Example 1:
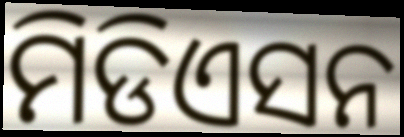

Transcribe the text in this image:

ମିଡିଏସନ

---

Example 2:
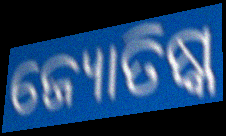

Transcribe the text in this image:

ଜ୍ୟୋତିଷ୍କ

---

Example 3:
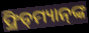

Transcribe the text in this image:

ଫ୍ରିଡ୍‌ମ୍ୟାନ୍‌ଙ୍କ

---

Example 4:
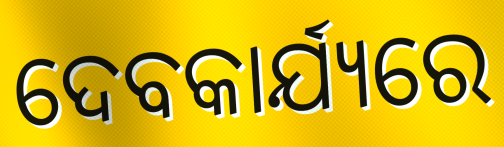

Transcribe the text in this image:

ଦେବକାର୍ଯ୍ୟରେ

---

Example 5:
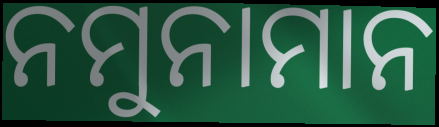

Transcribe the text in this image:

ନମୁନାମାନ